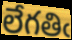
లేగతిఁ